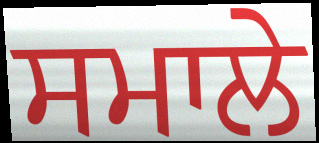
ਸਮਾਲੇ